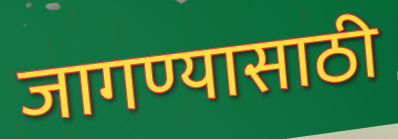
जागण्यासाठी